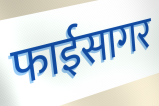
फाईसागर